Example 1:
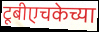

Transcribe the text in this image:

टूबीएचकेच्या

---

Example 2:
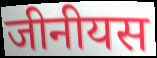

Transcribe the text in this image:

जीनीयस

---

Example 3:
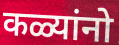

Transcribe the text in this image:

कळ्यांनो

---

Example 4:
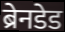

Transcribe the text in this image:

ब्रेनडेड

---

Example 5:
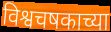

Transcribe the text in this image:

विश्वचषकाच्या